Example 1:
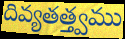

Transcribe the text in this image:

దివ్యతత్త్వము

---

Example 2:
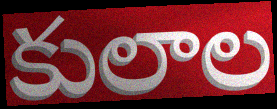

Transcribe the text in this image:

కులాల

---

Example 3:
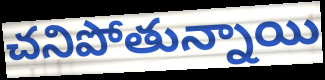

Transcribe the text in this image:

చనిపోతున్నాయి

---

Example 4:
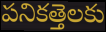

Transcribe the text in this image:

పనికత్తెలకు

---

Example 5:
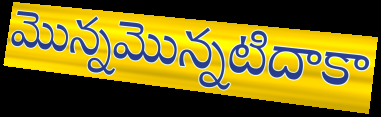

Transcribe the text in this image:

మొన్నమొన్నటిదాకా